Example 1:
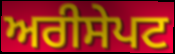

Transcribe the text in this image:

ਅਰੀਸੇਪਟ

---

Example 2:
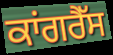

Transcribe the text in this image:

ਕਾਂਗਰੈੱਸ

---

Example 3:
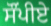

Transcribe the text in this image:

ਸੌਂਪੀਏ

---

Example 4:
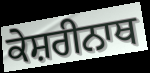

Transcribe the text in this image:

ਕੇਸ਼ਰੀਨਾਥ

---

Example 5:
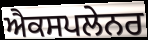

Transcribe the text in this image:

ਐਕਸਪਲੇਨਰ